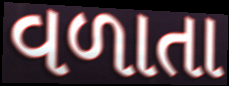
વળાતા